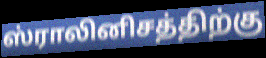
ஸ்ராலினிசத்திற்கு